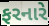
ફરનારે